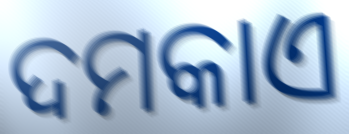
ଦମକାଏ